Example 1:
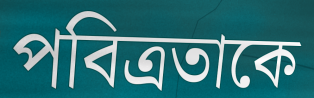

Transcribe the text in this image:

পবিত্রতাকে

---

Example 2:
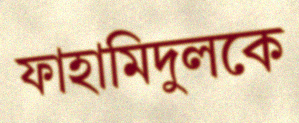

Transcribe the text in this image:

ফাহামিদুলকে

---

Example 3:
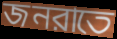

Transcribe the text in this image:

জনরাতে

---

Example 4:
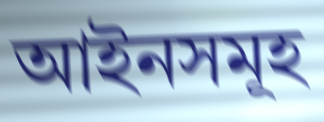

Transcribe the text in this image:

আইনসমূহ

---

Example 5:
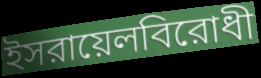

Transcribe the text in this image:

ইসরায়েলবিরোধী